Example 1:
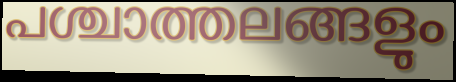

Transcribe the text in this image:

പശ്ചാത്തലങ്ങളും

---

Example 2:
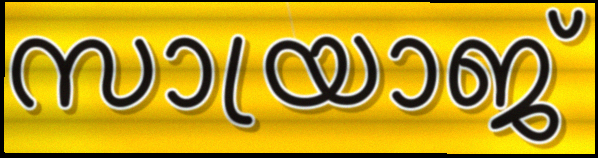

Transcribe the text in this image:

സായ്രാജ്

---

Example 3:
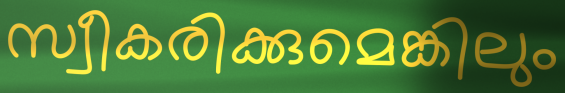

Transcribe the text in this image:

സ്വീകരിക്കുമെങ്കിലും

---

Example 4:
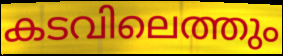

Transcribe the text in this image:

കടവിലെത്തും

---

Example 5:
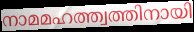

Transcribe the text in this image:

നാമമഹത്ത്വത്തിനായി